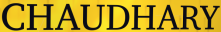
CHAUDHARY